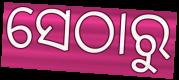
ସେଠାରୁ